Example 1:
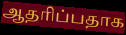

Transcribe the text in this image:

ஆதரிப்பதாக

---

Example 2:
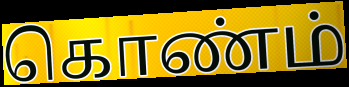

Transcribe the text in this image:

கொண்ம்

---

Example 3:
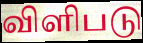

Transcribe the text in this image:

விளிபடு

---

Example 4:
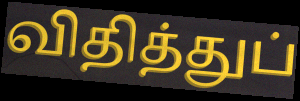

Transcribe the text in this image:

விதித்துப்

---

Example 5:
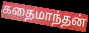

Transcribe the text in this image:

கதைமாந்தன்